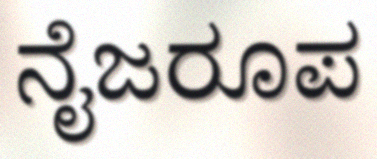
ನೈಜರೂಪ